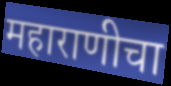
महाराणीचा